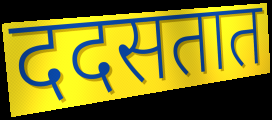
ददसतात